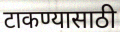
टाकण्यासाठी